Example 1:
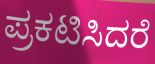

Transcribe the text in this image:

ಪ್ರಕಟಿಸಿದರೆ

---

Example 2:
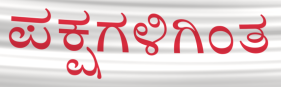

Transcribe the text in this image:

ಪಕ್ಷಗಳಿಗಿಂತ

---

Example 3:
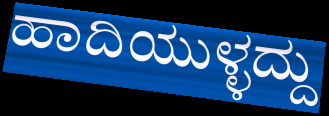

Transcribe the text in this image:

ಹಾದಿಯುಳ್ಳದ್ದು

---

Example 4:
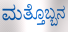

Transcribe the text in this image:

ಮತ್ತೊಬ್ಬನ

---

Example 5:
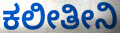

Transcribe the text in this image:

ಕಲೀತೀನಿ